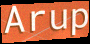
Arup